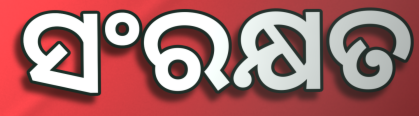
ସଂରକ୍ଷତ